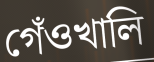
গেঁওখালি